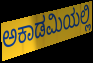
ಅಕಾಡಮಿಯಲ್ಲಿ